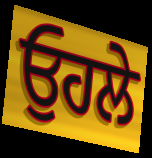
ਓੁਹਲੇ